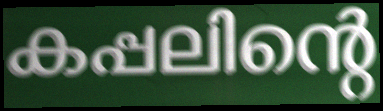
കപ്പലിന്റെ